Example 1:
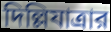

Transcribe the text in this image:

দিল্লিযাত্রার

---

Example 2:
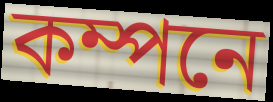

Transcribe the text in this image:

কম্পনে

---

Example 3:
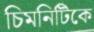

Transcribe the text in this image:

চিমনিটিকে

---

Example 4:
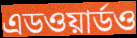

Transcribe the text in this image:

এডওয়ার্ডও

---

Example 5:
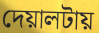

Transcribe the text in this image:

দেয়ালটায়